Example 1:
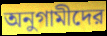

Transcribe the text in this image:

অনুগামীদের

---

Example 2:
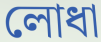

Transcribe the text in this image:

লোধা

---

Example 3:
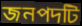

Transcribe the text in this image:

জনপদটি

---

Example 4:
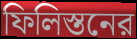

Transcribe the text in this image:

ফিলিস্তনের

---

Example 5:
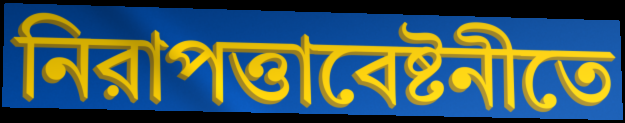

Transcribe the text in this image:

নিরাপত্তাবেষ্টনীতে